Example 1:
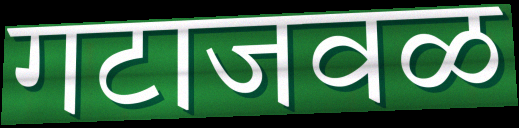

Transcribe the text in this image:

गटाजवळ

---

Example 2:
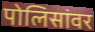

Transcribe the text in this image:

पोलिसांवर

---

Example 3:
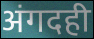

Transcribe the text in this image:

अंगदही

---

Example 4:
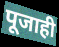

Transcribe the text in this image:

पूजाही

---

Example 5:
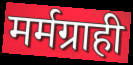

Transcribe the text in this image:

मर्मग्राही